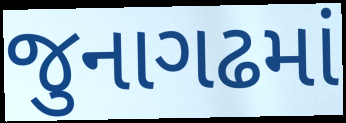
જુનાગઢમાં